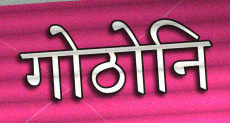
गोठोनि